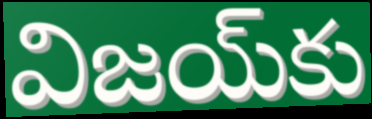
విజయ్‌కు